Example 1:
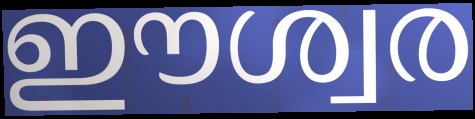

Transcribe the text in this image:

ഈശ്വര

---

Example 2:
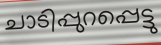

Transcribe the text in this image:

ചാടിപ്പുറപ്പെട്ടു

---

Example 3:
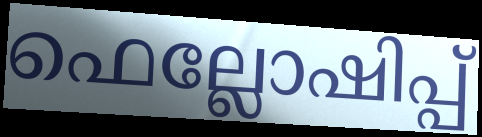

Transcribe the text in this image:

ഫെല്ലോഷിപ്പ്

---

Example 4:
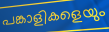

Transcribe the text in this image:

പങ്കാളികളെയും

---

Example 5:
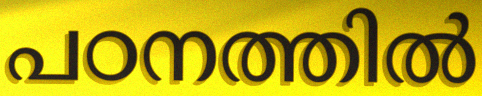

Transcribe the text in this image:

പഠനത്തിൽ